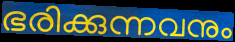
ഭരിക്കുന്നവനും